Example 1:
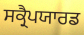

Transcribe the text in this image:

ਸਕ੍ਰੈਪਯਾਰਡ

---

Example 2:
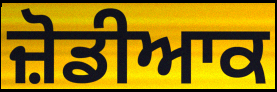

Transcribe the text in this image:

ਜ਼ੋਡੀਆਕ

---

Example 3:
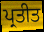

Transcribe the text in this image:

ਪ੍ਰਤੀਤ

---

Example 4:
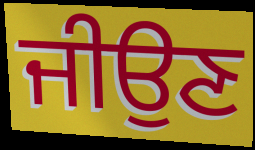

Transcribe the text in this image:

ਜੀਉਣ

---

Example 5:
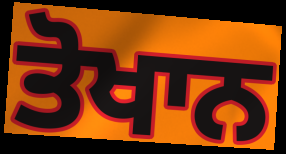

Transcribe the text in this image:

ਤੋਖਾਨ